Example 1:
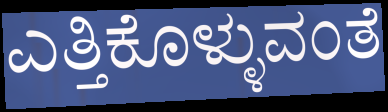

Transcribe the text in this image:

ಎತ್ತಿಕೊಳ್ಳುವಂತೆ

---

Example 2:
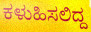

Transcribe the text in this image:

ಕಳುಹಿಸಲಿದ್ದ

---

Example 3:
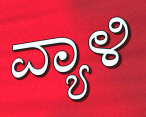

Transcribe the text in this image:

ವ್ಯಾಳಿ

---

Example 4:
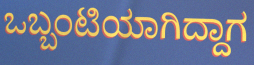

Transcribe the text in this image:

ಒಬ್ಬಂಟಿಯಾಗಿದ್ದಾಗ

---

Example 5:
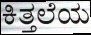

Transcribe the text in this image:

ಕಿತ್ತಲೆಯ